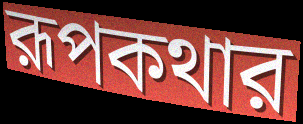
রূপকথার